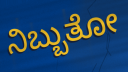
ನಿಬ್ಬುತೋ